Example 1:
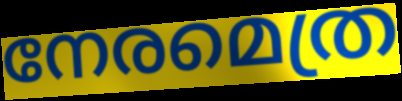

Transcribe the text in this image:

നേരമെത്ര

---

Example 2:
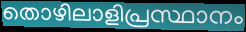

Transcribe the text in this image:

തൊഴിലാളിപ്രസ്ഥാനം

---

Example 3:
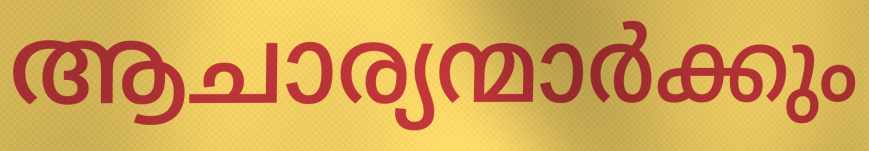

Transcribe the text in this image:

ആചാര്യന്മാർക്കും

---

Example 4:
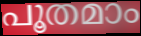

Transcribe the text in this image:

പൂതമാം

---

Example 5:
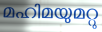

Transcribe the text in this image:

മഹിമയുമറ്റു